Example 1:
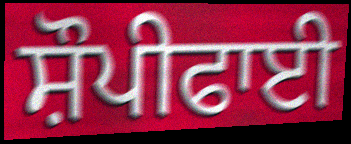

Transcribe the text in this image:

ਸ਼ੌਪੀਫਾਈ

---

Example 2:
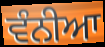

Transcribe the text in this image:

ਵੰਨੀਆ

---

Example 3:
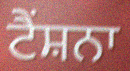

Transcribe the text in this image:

ਟੈਂਸ਼ਨਾ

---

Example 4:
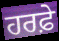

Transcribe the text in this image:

ਹਰਫ਼ੇ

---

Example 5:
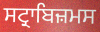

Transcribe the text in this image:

ਸਟ੍ਰਾਬਿਜ਼ਮਸ